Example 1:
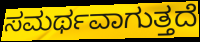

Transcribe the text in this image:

ಸಮರ್ಥವಾಗುತ್ತದೆ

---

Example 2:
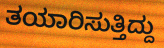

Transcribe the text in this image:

ತಯಾರಿಸುತ್ತಿದ್ದು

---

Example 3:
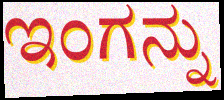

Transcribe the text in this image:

ಇಂಗನ್ನು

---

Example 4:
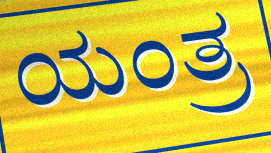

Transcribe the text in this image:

ಯಂತ್ರ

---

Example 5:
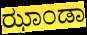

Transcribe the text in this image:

ಝಾಂಡಾ